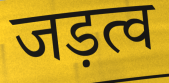
जड़त्व